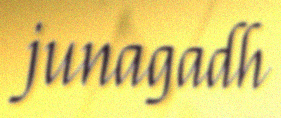
junagadh